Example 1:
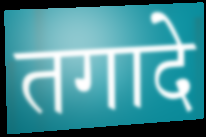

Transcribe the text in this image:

तगादे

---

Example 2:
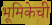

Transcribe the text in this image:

भूमिकेची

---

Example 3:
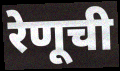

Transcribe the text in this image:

रेणूची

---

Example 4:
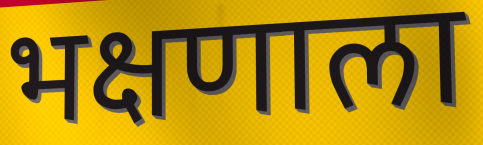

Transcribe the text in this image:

भक्षणाला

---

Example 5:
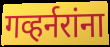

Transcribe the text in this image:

गव्हर्नरांना